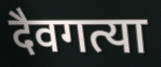
दैवगत्या